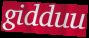
gidduu